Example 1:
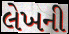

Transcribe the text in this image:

લેખની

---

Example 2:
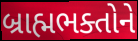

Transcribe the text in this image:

બ્રાહ્મભક્તોને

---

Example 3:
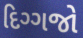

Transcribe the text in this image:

દિગ્ગજો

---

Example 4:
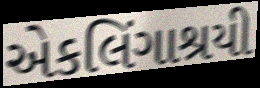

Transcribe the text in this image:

એકલિંગાશ્રયી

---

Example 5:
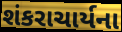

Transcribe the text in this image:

શંકરાચાર્યના